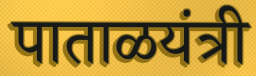
पाताळयंत्री